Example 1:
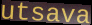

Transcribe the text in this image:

utsava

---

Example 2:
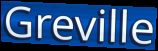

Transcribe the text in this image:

Greville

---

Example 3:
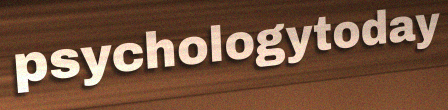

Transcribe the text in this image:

psychologytoday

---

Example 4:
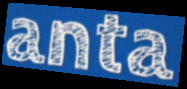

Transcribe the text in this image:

anta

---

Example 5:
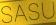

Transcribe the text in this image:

SASU